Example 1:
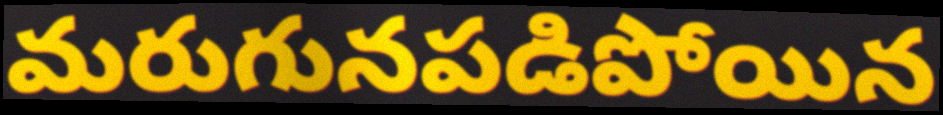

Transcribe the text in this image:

మరుగునపడిపోయిన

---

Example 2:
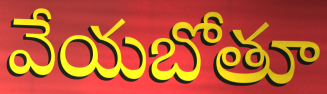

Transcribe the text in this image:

వేయబోతూ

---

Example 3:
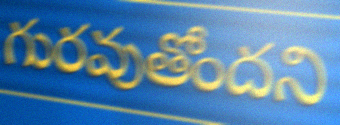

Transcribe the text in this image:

గురవుతోందని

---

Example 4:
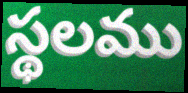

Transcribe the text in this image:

స్థలము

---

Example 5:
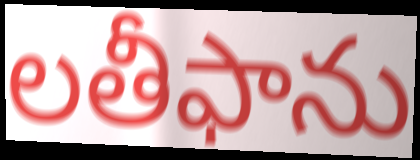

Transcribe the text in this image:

లతీఫాను